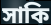
সাকি